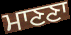
ਮਾਣਣਾ